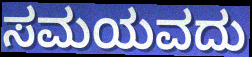
ಸಮಯವದು